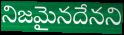
నిజమైనదేనని